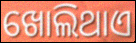
ଖୋଲିଥାଏ